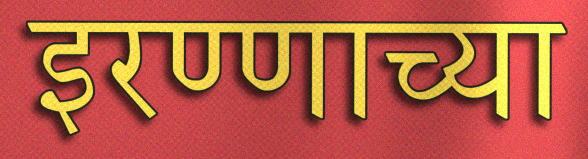
इरण्णाच्या